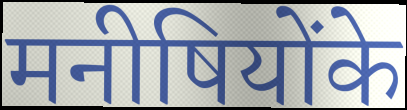
मनीषियोंके